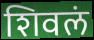
शिवलं